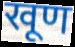
खूण